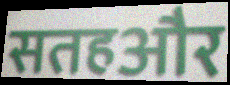
सतहऔर